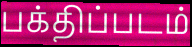
பக்திப்படம்